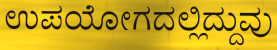
ಉಪಯೋಗದಲ್ಲಿದ್ದುವು